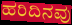
ಹರಿದಿನವು